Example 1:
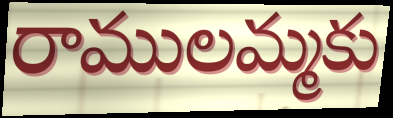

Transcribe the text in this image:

రాములమ్మకు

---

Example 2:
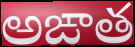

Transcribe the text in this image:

అఙాత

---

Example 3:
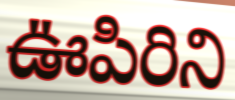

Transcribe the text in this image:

ఊపిరిని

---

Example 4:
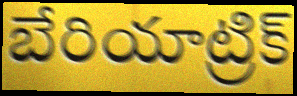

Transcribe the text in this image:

బేరియాట్రిక్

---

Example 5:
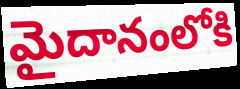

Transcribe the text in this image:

మైదానంలోకి